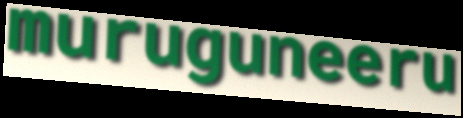
muruguneeru